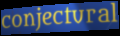
conjectural